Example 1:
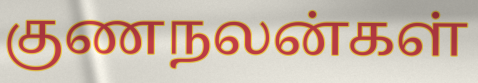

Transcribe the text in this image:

குணநலன்கள்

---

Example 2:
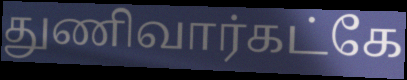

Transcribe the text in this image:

துணிவார்கட்கே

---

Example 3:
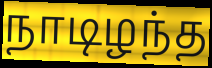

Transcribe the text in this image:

நாடிழந்த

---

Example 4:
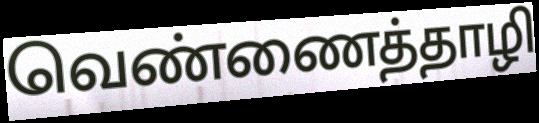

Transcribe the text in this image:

வெண்ணைத்தாழி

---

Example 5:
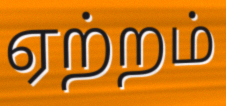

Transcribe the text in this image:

ஏற்றம்